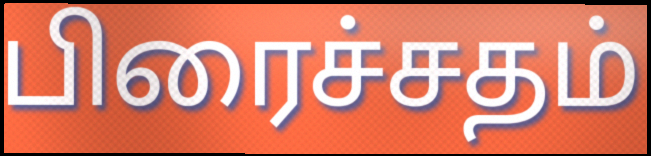
பிரைச்சதம்